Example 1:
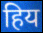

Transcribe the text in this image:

हिय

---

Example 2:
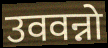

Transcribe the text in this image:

उववन्नो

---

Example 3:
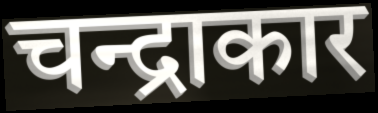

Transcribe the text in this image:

चन्द्राकार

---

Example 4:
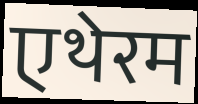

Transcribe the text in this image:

एथेरम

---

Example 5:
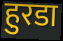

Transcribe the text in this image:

हुरडा